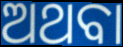
ଅଥବା